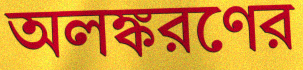
অলঙ্করণের